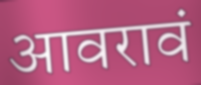
आवरावं